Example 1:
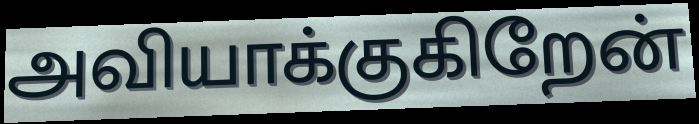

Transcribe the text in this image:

அவியாக்குகிறேன்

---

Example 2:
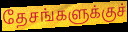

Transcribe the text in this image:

தேசங்களுக்குச்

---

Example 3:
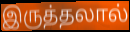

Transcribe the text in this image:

இருத்தலால்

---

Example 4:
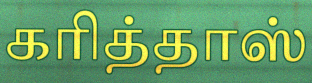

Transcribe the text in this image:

கரித்தாஸ்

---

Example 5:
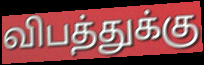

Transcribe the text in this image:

விபத்துக்கு